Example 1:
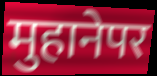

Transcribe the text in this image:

मुहानेपर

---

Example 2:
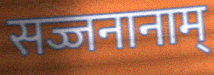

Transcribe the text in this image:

सज्जनानाम्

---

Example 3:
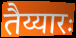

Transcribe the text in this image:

तैय्यारः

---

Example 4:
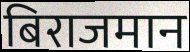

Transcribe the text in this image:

बिराजमान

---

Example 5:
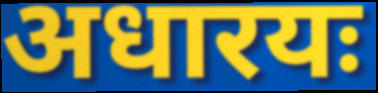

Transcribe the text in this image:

अधारयः